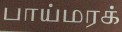
பாய்மரக்